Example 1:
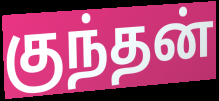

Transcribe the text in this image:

குந்தன்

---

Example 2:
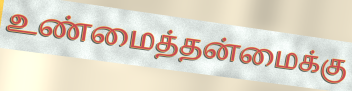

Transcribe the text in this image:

உண்மைத்தன்மைக்கு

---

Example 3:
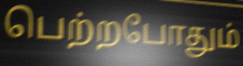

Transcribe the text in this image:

பெற்றபோதும்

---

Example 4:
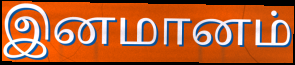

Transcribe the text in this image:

இனமானம்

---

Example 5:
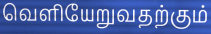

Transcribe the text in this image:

வெளியேறுவதற்கும்